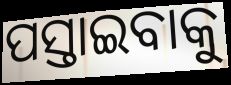
ପସ୍ତାଇବାକୁ